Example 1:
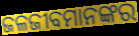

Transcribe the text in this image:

ଜଳଜୀବମାନଙ୍କର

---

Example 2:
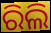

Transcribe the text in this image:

ରିଲି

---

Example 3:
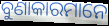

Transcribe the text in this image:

ବୁଣାକାରମାନେ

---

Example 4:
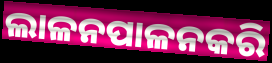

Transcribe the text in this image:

ଲାଳନପାଳନକରି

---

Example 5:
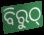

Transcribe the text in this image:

ବିରୁଠ୍